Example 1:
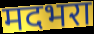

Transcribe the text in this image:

मदभरा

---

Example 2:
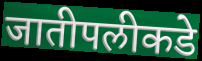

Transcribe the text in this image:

जातीपलीकडे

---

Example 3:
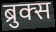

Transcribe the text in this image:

ब्रुक्‍स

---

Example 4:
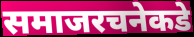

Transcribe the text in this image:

समाजरचनेकडे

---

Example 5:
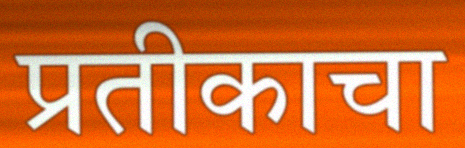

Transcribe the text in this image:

प्रतीकाचा